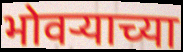
भोवऱ्याच्या